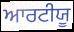
ਆਰਟੀਯੂ